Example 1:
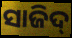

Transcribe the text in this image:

ସାଜିଦ୍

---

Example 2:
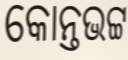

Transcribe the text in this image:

କୋନ୍ତଭଟ୍ଟ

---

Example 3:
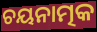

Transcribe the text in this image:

ଚୟନାତ୍ମକ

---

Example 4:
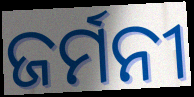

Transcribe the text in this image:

ଜର୍ମନୀ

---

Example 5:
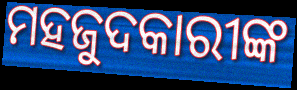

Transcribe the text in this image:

ମହଜୁଦକାରୀଙ୍କ